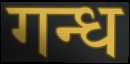
गन्ध